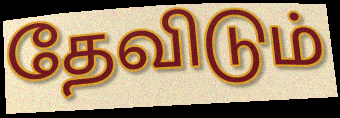
தேவிடும்